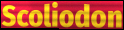
Scoliodon